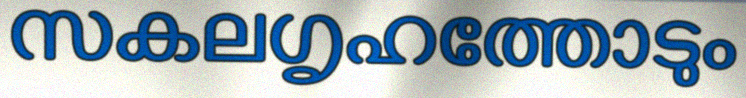
സകലഗൃഹത്തോടും